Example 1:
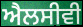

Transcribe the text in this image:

ਐਲਸੀਵੀ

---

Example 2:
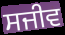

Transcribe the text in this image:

ਸਜੀਵ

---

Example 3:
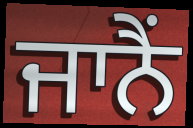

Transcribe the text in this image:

ਜਾਨੈਂ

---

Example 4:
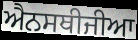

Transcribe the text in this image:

ਐਨਸਥੀਜੀਆ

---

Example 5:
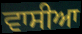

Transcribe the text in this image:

ਵਾਸੀਆ